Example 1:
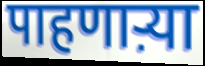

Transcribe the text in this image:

पाहणाऱ्‍या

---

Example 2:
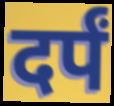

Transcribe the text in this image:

दर्पं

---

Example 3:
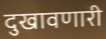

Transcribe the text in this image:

दुखावणारी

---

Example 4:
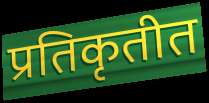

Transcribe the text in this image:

प्रतिकृतीत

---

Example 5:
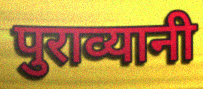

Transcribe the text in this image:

पुराव्यानी